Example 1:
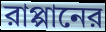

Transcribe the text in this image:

রাপ্পানের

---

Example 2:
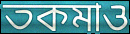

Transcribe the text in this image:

তকমাও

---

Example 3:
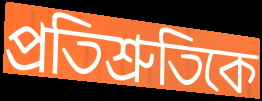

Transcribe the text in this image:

প্রতিশ্রুতিকে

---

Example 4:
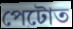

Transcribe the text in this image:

পেটোত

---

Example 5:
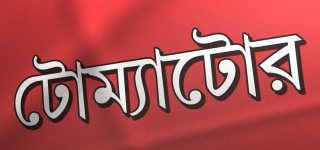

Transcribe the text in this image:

টোম্যাটোর